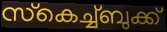
സ്‌കെച്ച്ബുക്ക്